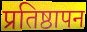
प्रतिष्ठापन